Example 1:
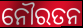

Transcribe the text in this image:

ନୌରତନ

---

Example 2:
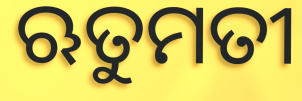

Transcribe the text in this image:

ଋତୁମତୀ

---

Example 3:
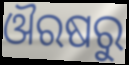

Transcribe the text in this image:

ଔରଷରୁ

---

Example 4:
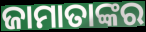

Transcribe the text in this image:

ଜାମାତାଙ୍କର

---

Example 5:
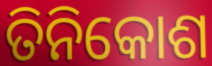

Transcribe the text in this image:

ତିନିକୋଶ